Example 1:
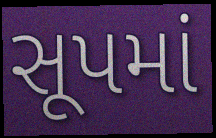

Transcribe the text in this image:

સૂપમાં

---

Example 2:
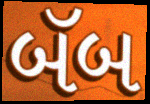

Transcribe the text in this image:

બૅબ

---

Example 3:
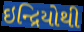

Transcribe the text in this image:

ઇન્દ્રિયોથી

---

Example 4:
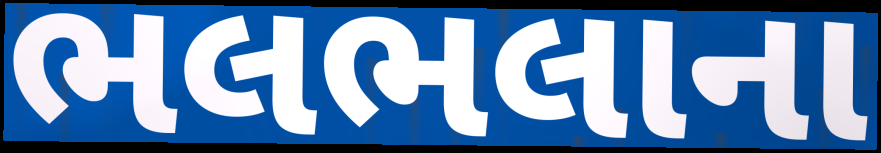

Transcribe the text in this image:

ભલભલાના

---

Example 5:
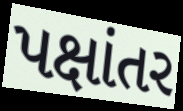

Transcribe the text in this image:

પક્ષાંતર